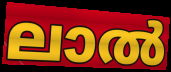
ലാൽ